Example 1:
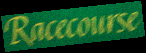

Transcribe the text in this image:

Racecourse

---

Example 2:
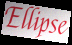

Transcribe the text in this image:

Ellipse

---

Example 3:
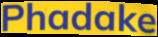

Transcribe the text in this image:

Phadake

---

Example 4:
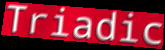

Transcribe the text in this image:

Triadic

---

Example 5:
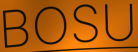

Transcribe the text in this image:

BOSU